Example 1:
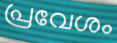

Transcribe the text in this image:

പ്രവേശം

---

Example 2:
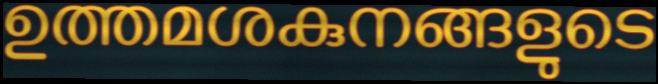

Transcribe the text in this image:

ഉത്തമശകുനങ്ങളുടെ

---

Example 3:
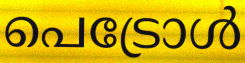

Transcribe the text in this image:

പെട്രോൾ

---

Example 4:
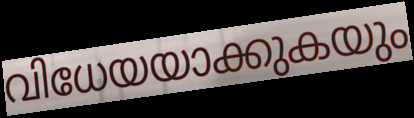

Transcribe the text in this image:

വിധേയയാക്കുകയും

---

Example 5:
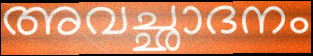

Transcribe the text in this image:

അവച്ഛാദനം